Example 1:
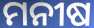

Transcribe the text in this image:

ମନୀଷ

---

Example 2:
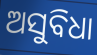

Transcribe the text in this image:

ଅସୁବିଧା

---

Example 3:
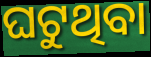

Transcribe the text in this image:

ଘଟୁଥିବା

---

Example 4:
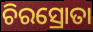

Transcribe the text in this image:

ଚିରସ୍ରୋତା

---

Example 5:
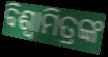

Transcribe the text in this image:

ବିଶ୍ଵାମିତ୍ରଙ୍କ